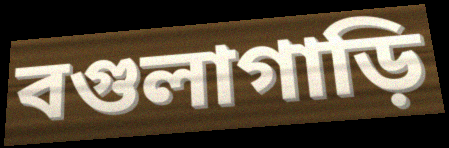
বগুলাগাড়ি